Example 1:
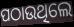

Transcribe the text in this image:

ପଠାଉଥିଲେ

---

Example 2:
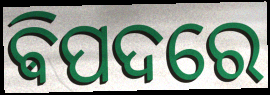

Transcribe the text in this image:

ଵିପଦରେ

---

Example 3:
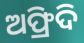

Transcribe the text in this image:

ଅଫ୍ରିଦି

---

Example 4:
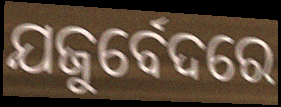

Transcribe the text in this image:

ଯଜୁର୍ବେଦରେ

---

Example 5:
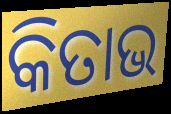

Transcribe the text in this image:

କିତାଭ